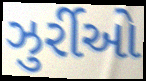
ઝુર્રીઓ